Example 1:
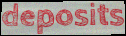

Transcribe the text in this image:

deposits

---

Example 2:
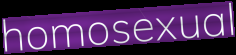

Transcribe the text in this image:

homosexual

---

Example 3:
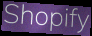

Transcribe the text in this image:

Shopify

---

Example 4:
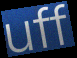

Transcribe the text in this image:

uff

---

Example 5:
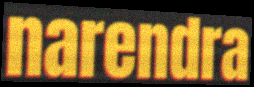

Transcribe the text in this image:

narendra